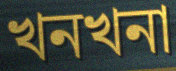
খনখনা